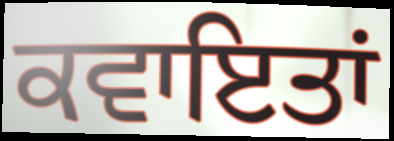
ਕਵਾਇਤਾਂ